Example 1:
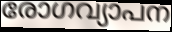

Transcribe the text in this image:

രോഗവ്യാപന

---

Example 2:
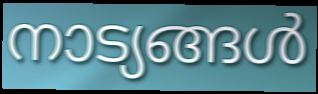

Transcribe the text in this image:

നാട്യങ്ങൾ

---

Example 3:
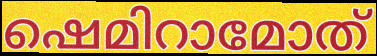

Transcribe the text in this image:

ഷെമിറാമോത്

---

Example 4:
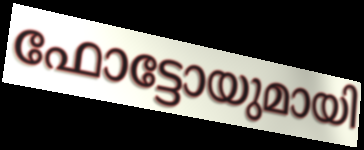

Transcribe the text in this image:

ഫോട്ടോയുമായി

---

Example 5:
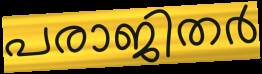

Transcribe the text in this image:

പരാജിതർ